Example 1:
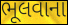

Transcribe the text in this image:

ભૂલવાના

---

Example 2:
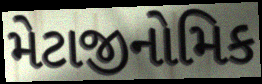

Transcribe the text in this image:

મેટાજીનોમિક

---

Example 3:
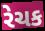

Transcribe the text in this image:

રેચક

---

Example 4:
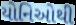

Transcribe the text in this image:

યોનિઓથી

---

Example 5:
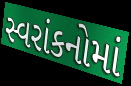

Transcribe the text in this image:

સ્વરાંકનોમાં